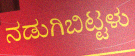
ನಡುಗಿಬಿಟ್ಟಳು